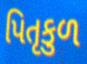
પિતૃકુળ